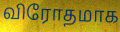
விரோதமாக